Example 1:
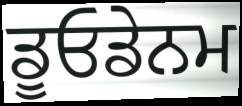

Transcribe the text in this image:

ਡੂਓਡੇਨਮ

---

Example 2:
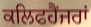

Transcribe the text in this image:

ਕਲਿਫਹੈਂਜਰਾਂ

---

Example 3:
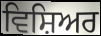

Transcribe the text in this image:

ਵਿਸ਼ਿਅਰ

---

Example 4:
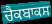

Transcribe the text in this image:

ਚੈਕਬਾਕਸ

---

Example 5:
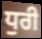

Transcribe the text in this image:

ਧੁਰੀ